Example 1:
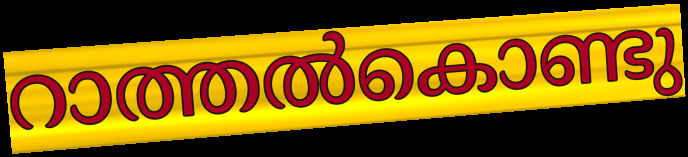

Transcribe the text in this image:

റാത്തൽകൊണ്ടു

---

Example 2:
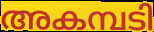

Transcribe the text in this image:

അകമ്പടി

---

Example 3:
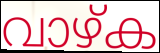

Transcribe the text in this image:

വാഴ്ക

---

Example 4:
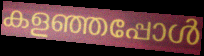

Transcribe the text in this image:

കളഞ്ഞപ്പോൾ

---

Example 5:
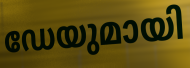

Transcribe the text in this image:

ഡേയുമായി